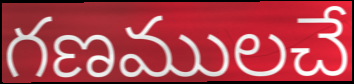
గణములచే